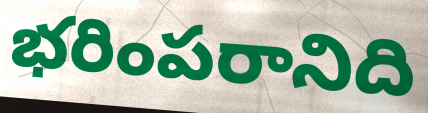
భరింపరానిది